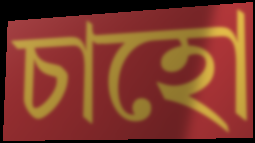
চাহো